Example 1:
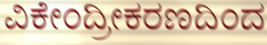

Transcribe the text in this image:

ವಿಕೇಂದ್ರೀಕರಣದಿಂದ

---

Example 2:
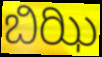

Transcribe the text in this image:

ಬಿಝಿ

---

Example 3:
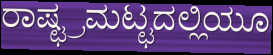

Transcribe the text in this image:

ರಾಷ್ಟ್ರಮಟ್ಟದಲ್ಲಿಯೂ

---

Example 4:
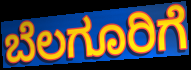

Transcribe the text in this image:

ಬೆಲಗೂರಿಗೆ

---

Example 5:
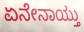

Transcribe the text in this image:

ಏನೇನಾಯ್ತು